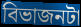
বিভাজনটা